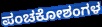
ಪಂಚಕೋಶಂಗಳ